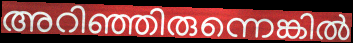
അറിഞ്ഞിരുന്നെങ്കിൽ